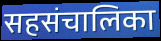
सहसंचालिका